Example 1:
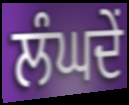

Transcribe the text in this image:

ਲੰਘਦੇਂ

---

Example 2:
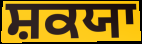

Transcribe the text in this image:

ਸ਼ਕਯਾ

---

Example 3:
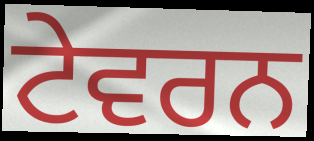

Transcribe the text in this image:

ਟੇਵਰਨ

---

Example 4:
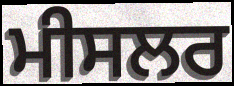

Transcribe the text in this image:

ਮੀਸਲਰ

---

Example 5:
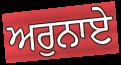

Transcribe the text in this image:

ਅਰੁਨਾਏ